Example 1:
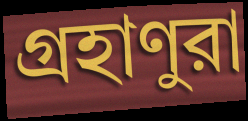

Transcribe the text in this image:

গ্রহাণুরা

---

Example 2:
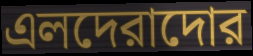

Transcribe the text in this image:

এলদেরাদোর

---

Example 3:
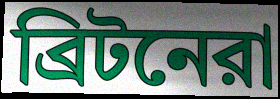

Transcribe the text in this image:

ব্রিটনেরা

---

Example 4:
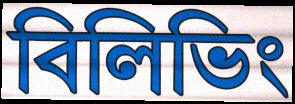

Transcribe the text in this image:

বিলিভিং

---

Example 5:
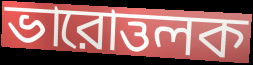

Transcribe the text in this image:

ভারোত্তলক